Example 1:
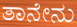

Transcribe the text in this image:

ತಾನೇನು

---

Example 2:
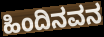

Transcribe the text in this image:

ಹಿಂದಿನವನ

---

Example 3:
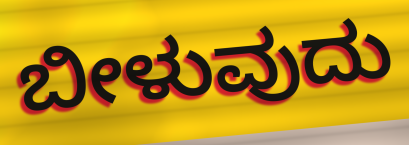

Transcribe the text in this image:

ಬೀಳುವುದು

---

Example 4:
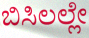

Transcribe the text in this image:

ಬಿಸಿಲಲ್ಲೇ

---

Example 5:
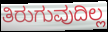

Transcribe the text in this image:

ತಿರುಗುವುದಿಲ್ಲ